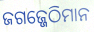
ଜଗଜ୍ଜେଠିମାନ